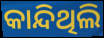
କାନ୍ଦିଥିଲି